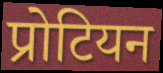
प्रोटियन